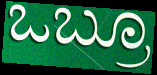
ಒಬ್ರೂ